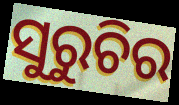
ସୁରୁଚିର